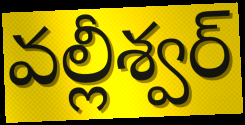
వల్లీశ్వర్